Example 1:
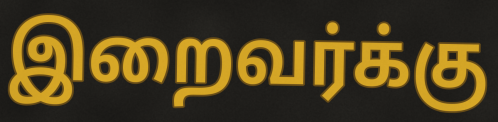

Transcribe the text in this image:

இறைவர்க்கு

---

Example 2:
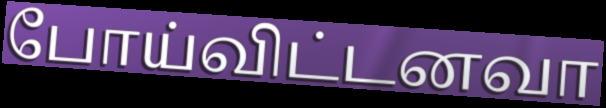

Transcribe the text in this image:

போய்விட்டனவா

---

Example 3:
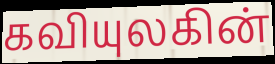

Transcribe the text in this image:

கவியுலகின்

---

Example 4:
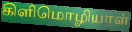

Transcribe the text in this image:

கிளிமொழியாள்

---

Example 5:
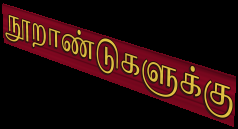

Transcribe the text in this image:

நூறாண்டுகளுக்கு